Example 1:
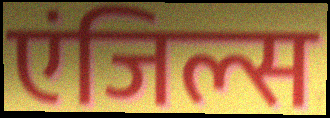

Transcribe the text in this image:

एंजिल्स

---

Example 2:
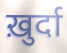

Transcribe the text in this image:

ख़ुर्दा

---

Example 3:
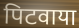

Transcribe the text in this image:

पिटवाया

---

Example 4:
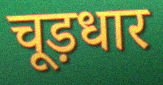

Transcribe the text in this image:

चूड़धार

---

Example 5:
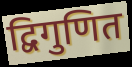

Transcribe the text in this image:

द्विगुणित